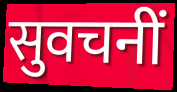
सुवचनीं